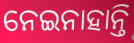
ନେଇନାହାନ୍ତି